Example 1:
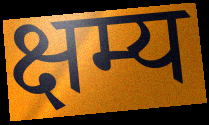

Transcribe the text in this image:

क्षम्य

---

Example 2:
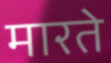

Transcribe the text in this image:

मारते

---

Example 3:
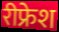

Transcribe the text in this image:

रीफ्रेश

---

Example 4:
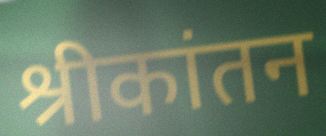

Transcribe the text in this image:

श्रीकांतन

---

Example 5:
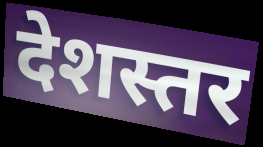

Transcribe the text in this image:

देशस्तर